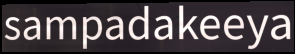
sampadakeeya